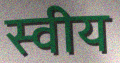
स्वीय